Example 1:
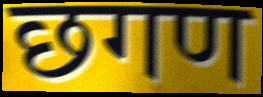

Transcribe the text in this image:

छगण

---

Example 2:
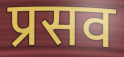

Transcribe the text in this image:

प्रसव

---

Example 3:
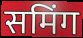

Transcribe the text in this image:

समिंग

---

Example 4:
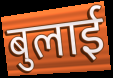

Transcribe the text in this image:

बुलाई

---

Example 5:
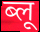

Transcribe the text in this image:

ब्लू